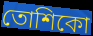
তোশিকো